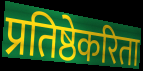
प्रतिष्ठेकरिता